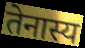
तेनास्य